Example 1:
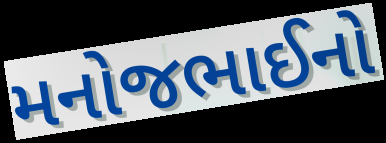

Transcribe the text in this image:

મનોજભાઈનો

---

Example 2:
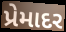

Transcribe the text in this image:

પ્રેમાદર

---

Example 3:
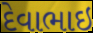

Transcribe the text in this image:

દેવાભાઇ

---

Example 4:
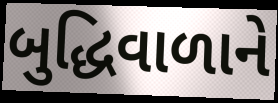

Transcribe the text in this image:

બુદ્ધિવાળાને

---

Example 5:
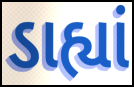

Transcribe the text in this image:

ડાહ્યાં